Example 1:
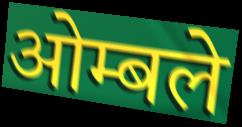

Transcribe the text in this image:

ओम्बले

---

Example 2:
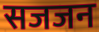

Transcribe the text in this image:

सजजन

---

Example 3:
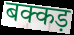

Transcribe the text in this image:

बक्कड़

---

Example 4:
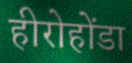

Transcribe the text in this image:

हीरोहोंडा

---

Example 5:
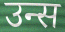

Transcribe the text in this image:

उन्स